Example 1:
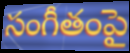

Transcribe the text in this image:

సంగీతంపై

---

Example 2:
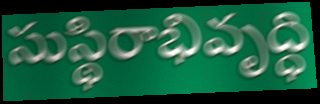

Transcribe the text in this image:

సుస్థిరాభివృద్ధి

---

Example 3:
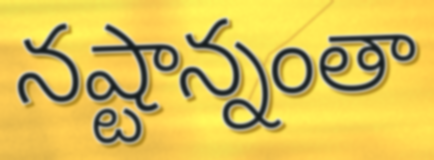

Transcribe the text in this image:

నష్టాన్నంతా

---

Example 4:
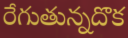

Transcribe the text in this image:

రేగుతున్నదొక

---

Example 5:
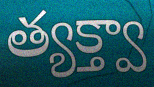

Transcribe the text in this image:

త్యక్త్వా